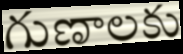
గుణాలకు